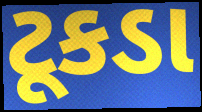
ટૂકડા